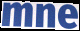
mne